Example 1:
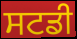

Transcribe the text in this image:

ਸਟਡੀ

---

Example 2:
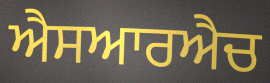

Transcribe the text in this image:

ਐਸਆਰਐਚ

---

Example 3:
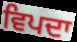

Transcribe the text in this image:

ਵਿਪਦਾ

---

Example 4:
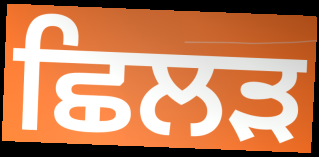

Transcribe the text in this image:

ਛਿਲੜ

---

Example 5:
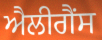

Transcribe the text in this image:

ਐਲੀਗੈਂਸ